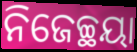
ନିଜେଚ୍ଛୟା